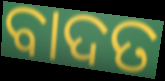
ବାଦତ